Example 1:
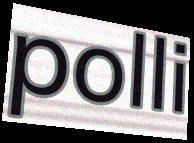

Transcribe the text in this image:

polli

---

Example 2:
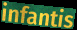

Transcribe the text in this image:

infantis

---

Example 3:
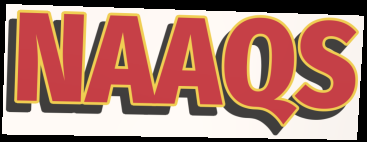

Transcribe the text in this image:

NAAQS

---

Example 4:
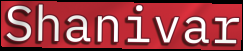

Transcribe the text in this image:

Shanivar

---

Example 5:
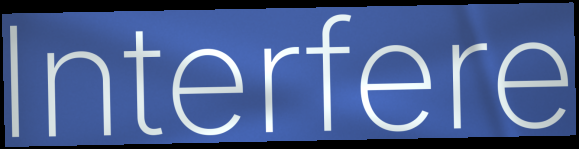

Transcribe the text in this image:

Interfere